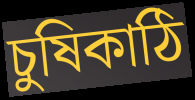
চুষিকাঠি